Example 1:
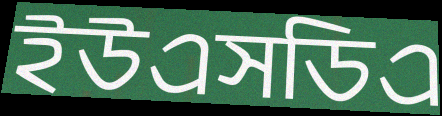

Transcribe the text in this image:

ইউএসডিএ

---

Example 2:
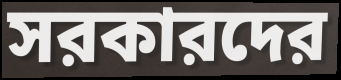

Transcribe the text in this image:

সরকারদের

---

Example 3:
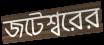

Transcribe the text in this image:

জটেশ্বরের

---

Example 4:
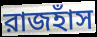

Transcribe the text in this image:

রাজহাঁস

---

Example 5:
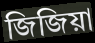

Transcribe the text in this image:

জিজিয়া